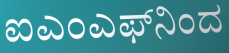
ಐಎಂಎಫ್‌ನಿಂದ